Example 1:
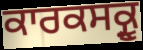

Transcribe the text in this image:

ਕਾਰਕਸਕ੍ਰੂ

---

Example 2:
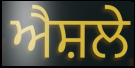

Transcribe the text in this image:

ਐਸ਼ਲੇ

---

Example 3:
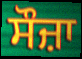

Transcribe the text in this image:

ਸੌਜ਼ਾ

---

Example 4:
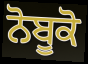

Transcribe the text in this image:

ਨੋਬੂਕੋ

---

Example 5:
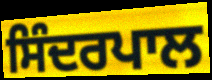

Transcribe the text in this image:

ਸਿੰਦਰਪਾਲ